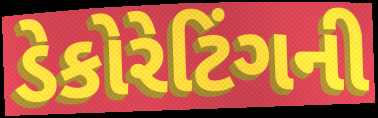
ડેકોરેટિંગની